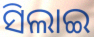
ସିଲାଇ